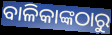
ବାଳିକାଙ୍କଠାରୁ